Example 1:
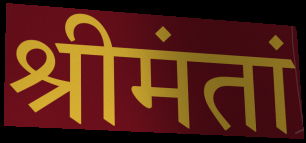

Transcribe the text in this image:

श्रीमंतां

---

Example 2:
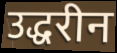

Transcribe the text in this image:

उद्धरीन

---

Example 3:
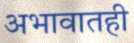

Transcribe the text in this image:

अभावातही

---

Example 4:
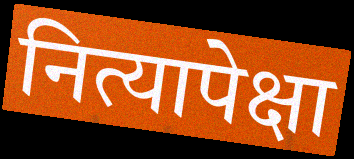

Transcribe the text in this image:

नित्यापेक्षा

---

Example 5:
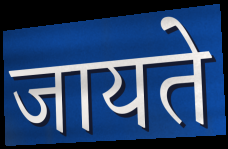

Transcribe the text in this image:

जायते